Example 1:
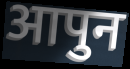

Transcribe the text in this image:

आपुन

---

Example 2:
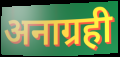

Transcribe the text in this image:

अनाग्रही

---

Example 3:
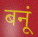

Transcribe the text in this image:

बनूं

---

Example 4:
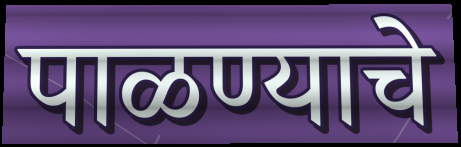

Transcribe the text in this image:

पाळण्याचे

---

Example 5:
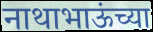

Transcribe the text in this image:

नाथाभाऊंच्या